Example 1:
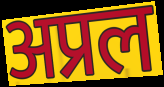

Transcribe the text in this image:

अप्रल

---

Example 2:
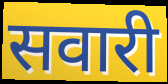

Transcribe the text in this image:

सवारी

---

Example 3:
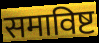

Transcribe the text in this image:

समाविष्ट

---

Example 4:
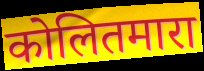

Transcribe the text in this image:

कोलितमारा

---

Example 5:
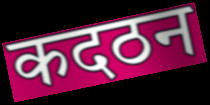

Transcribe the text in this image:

कदठन